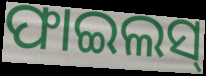
ଫାଇଲସ୍